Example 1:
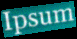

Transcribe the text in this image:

Ipsum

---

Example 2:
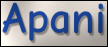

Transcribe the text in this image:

Apani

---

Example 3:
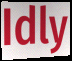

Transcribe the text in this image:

Idly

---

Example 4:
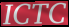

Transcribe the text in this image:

ICTC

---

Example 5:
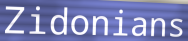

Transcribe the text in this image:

Zidonians